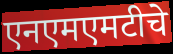
एनएमएमटीचे